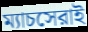
ম্যাচসেরাই